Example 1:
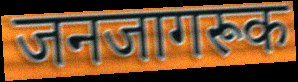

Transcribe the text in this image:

जनजागरूक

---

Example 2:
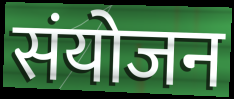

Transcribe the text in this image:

संयोजन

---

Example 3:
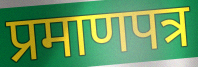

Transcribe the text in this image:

प्रमाणपत्र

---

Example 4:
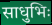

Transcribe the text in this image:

साधुभिः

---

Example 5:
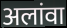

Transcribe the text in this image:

अलांवा